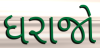
ધરાજો